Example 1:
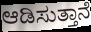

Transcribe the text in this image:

ಆಡಿಸುತ್ತಾನೆ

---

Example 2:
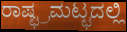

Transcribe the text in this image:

ರಾಷ್ಟ್ರಮಟ್ಟದಲ್ಲಿ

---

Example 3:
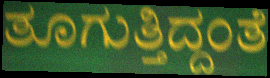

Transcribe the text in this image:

ತೂಗುತ್ತಿದ್ದಂತೆ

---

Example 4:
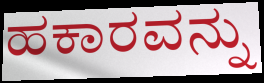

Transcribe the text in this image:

ಹಕಾರವನ್ನು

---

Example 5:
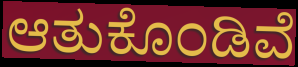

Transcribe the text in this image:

ಆತುಕೊಂಡಿವೆ